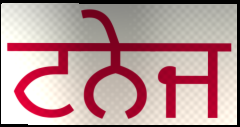
ਟਨੇਜ